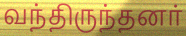
வந்திருந்தனர்